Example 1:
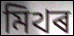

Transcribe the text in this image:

মিথৰ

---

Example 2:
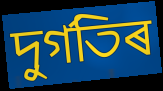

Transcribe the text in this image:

দুৰ্গতিৰ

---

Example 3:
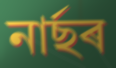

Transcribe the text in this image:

নাৰ্ছৰ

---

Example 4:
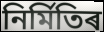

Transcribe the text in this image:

নিৰ্মিতিৰ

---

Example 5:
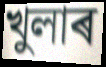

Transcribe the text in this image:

খুলাৰ